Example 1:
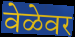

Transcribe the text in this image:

वेळेवर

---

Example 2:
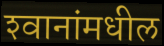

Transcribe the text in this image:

श्वानांमधील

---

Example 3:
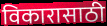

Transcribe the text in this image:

विकारासाठी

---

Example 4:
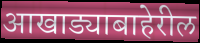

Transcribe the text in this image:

आखाड्याबाहेरील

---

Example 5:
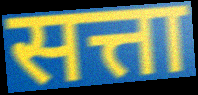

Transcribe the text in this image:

सत्ता